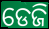
ଡେଜି